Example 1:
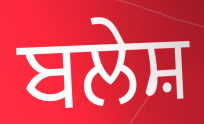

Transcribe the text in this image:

ਬਲੇਸ਼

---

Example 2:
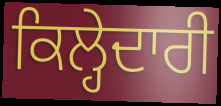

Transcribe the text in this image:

ਕਿਲ੍ਹੇਦਾਰੀ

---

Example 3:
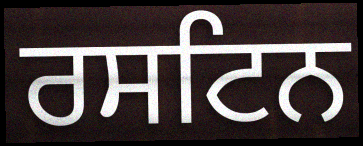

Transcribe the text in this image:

ਰਸਟਿਨ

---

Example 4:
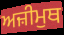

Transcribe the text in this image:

ਅਜ਼ੀਮੁਥ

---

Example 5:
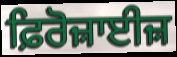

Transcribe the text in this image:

ਫ਼ਿਰੋਜ਼ਾਈਜ਼